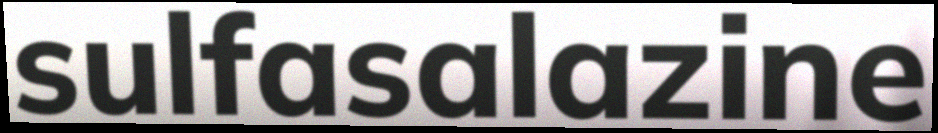
sulfasalazine